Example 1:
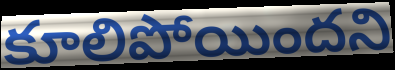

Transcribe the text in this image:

కూలిపోయిందని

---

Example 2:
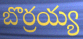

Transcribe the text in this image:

బొర్రయ్య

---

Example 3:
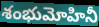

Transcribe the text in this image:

శంభుమోహినీ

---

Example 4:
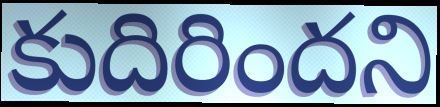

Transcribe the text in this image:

కుదిరిందని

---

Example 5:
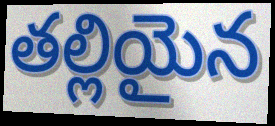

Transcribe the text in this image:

తల్లియైన